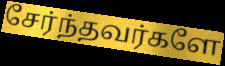
சேர்ந்தவர்களே